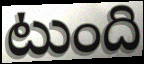
టుంది